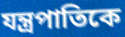
যন্ত্রপাতিকে